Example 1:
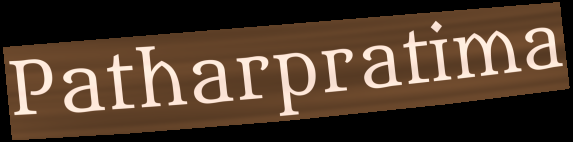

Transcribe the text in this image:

Patharpratima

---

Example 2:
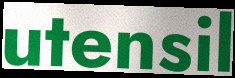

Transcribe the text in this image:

utensil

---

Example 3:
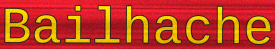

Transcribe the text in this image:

Bailhache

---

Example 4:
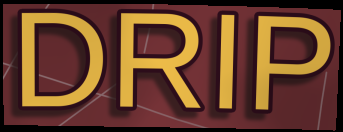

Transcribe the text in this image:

DRIP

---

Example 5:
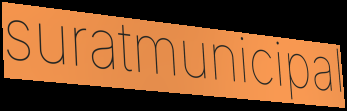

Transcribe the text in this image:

suratmunicipal